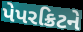
પેપરક્રિટને